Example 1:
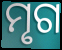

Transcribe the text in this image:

ମୃଗ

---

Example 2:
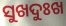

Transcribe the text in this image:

ସୁଖଦୁଃଖ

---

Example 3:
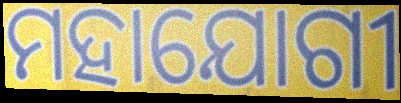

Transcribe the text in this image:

ମହାଯୋଗୀ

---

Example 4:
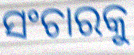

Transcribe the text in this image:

ସଂଚାରକୁ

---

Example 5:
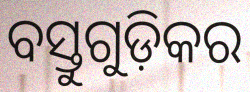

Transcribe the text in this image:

ବସ୍ତୁଗୁଡ଼ିକର